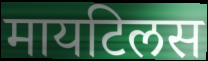
मायटिलस